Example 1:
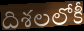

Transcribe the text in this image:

దిశలలోకీ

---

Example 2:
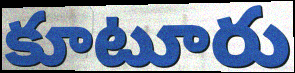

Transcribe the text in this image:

కూటూరు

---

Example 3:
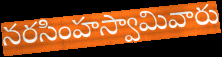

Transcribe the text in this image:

నరసింహస్వామివారు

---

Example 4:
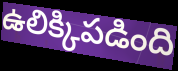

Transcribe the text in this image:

ఉలిక్కిపడింది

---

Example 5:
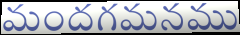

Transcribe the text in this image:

మందగమనము